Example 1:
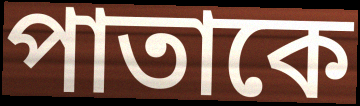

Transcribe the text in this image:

পাতাকে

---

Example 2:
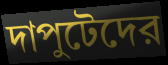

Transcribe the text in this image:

দাপুটেদের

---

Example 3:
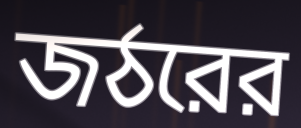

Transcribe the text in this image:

জঠরের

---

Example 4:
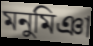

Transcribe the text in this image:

মনুমিঞা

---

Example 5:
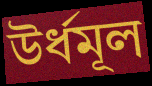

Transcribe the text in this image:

উর্ধমূল